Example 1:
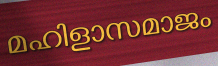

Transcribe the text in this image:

മഹിളാസമാജം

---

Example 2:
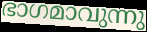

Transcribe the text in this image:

ഭാഗമാവുന്നു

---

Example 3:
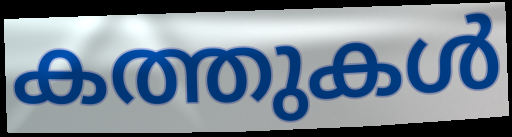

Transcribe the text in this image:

കത്തുകൾ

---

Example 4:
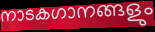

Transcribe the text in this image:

നാടകഗാനങ്ങളും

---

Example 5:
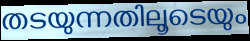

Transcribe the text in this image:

തടയുന്നതിലൂടെയും